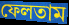
ফেলতাম